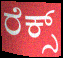
ರೆಕ್ಸ್